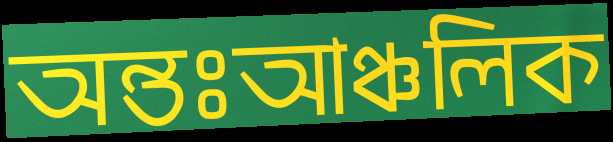
অন্তঃআঞ্চলিক